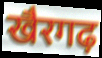
खैरगढ़